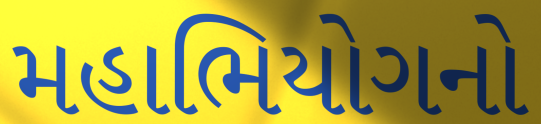
મહાભિયોગનો